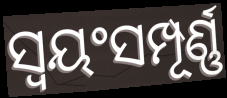
ସ୍ବୟଂସମ୍ପୂର୍ଣ୍ଣ